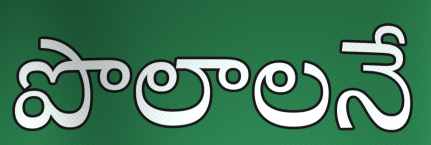
పొలాలనే